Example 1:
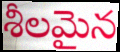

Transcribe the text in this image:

శీలమైన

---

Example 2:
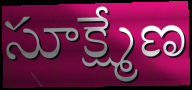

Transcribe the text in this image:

సూక్ష్మేణ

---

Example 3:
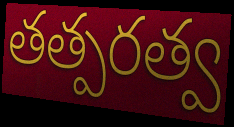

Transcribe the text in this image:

తత్పరత్వ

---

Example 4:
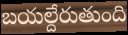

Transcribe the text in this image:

బయల్దేరుతుంది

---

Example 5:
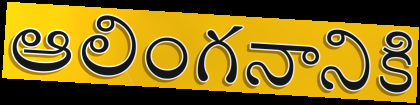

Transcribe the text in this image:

ఆలింగనానికి